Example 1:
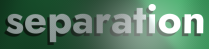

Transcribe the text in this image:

separation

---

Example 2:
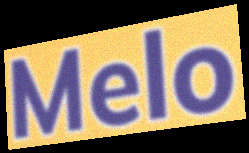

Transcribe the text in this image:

Melo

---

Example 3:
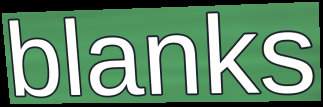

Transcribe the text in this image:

blanks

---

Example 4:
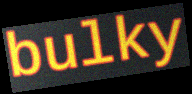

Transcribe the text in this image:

bulky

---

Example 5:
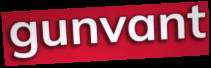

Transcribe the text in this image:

gunvant